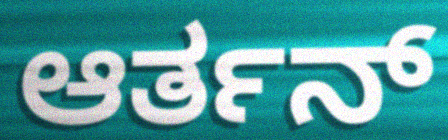
ಆರ್ತನ್